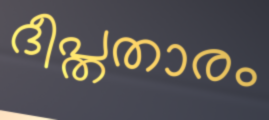
ദീപ്തതാരം